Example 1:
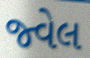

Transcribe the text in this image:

જ્વેલ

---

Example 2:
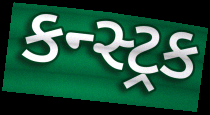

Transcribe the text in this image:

કન્સ્ટ્રક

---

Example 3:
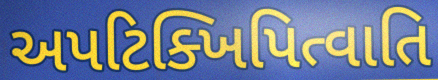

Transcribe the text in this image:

અપટિક્ખિપિત્વાતિ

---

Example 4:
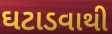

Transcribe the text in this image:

ઘટાડવાથી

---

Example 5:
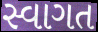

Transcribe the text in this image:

સ્વાગત